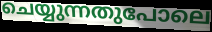
ചെയ്യുന്നതുപോലെ